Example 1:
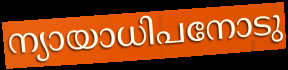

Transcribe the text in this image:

ന്യായാധിപനോടു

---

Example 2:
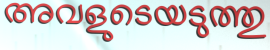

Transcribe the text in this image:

അവളുടെയടുത്തു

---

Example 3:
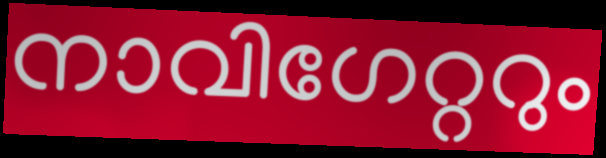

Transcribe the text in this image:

നാവിഗേറ്ററും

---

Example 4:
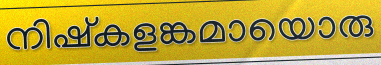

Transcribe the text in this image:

നിഷ്കളങ്കമായൊരു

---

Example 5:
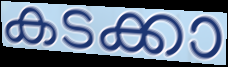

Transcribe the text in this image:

കടക്കാ